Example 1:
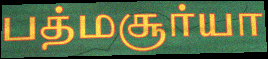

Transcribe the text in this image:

பத்மசூர்யா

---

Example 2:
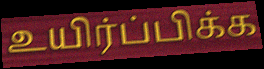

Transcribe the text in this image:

உயிர்ப்பிக்க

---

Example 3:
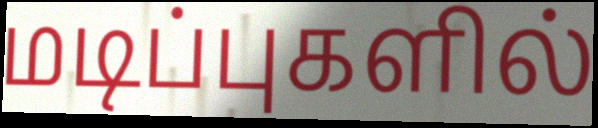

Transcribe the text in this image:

மடிப்புகளில்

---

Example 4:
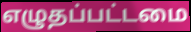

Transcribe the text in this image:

எழுதப்பட்டமை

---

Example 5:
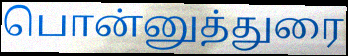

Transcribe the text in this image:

பொன்னுத்துரை